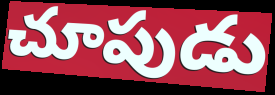
చూపుడు